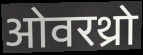
ओवरथ्रो